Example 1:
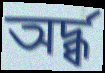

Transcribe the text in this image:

অর্দ্ধ্ব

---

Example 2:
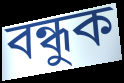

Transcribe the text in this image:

বন্ধুক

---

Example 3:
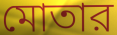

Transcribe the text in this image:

মোতার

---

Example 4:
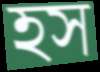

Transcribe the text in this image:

হস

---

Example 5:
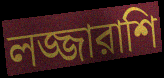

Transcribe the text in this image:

লজ্জারাশি